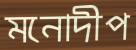
মনোদীপ